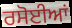
ਰਸੋਈਆਂ